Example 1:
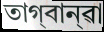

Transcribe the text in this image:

তাগ্‌বান্‌ৱা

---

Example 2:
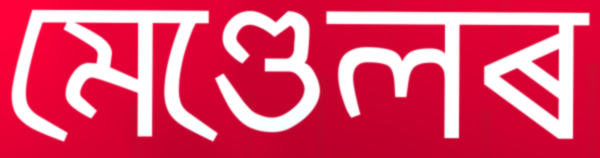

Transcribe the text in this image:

মেণ্ডেলৰ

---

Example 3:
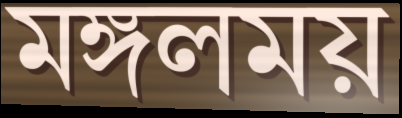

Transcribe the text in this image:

মঙ্গলময়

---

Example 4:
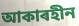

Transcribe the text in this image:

আকাৰহীন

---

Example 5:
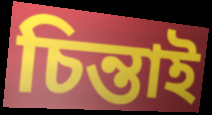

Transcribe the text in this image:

চিন্তাই